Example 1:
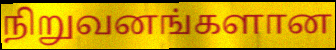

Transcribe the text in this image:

நிறுவனங்களான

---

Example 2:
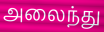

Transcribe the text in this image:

அலைந்து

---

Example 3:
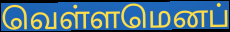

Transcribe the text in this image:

வெள்ளமெனப்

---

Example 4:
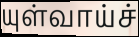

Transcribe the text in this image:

யுள்வாய்ச்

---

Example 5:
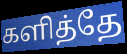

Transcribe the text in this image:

களித்தே